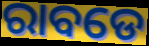
ରାବଡେ